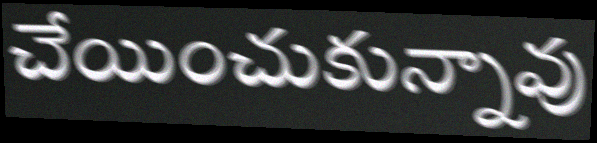
చేయించుకున్నావు